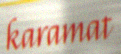
karamat